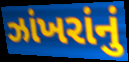
ઝાંખરાંનું